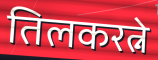
तिलकरत्ने